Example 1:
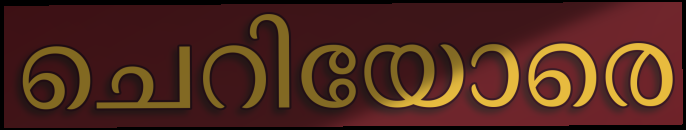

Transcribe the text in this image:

ചെറിയോരെ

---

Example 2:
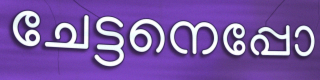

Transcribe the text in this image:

ചേട്ടനെപ്പോ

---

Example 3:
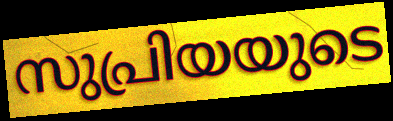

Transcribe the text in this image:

സുപ്രിയയുടെ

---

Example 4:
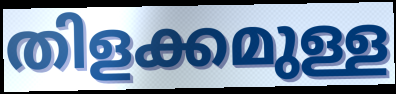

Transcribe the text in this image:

തിളക്കമുള്ള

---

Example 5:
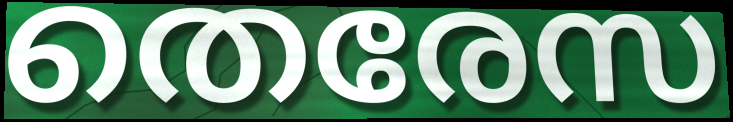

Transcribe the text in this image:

തെരേസ